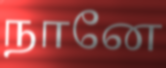
நானே